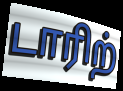
டாரிற்